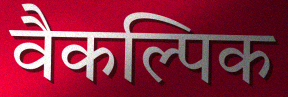
वैकल्पिक